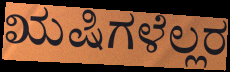
ಋಷಿಗಳೆಲ್ಲರ